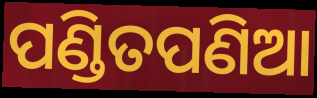
ପଣ୍ଡିତପଣିଆ